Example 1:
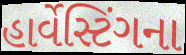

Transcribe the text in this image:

હાર્વેસ્ટિંગના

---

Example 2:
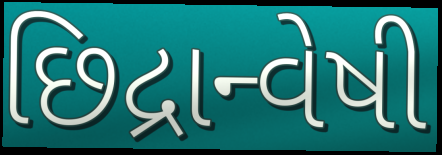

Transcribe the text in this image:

છિદ્રાન્વેષી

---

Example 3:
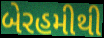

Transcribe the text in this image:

બેરહમીથી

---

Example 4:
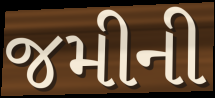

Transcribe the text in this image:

જમીની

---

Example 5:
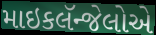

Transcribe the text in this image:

માઇકલૅન્જેલોએ